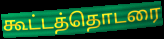
கூட்டத்தொடரை